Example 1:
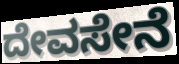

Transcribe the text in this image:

ದೇವಸೇನೆ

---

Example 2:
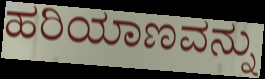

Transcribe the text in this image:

ಹರಿಯಾಣವನ್ನು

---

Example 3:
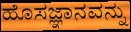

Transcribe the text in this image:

ಹೊಸಜ್ಞಾನವನ್ನು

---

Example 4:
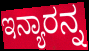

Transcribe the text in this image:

ಇನ್ಯಾರನ್ನ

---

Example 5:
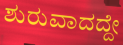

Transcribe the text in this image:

ಶುರುವಾದದ್ದೇ